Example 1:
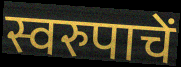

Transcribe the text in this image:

स्वरुपाचें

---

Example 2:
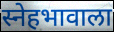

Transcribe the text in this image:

स्नेहभावाला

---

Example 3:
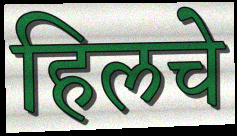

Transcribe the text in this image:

हिलचे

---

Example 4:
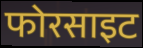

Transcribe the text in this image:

फोरसाइट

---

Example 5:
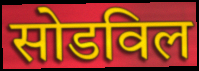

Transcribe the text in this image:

सोडविल